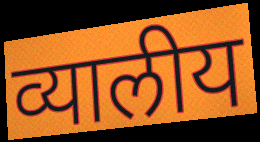
व्यालीय